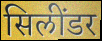
सिलींडर